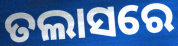
ତଲାସରେ